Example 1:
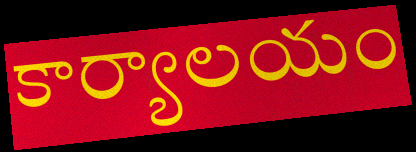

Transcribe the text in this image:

కార్యాలయం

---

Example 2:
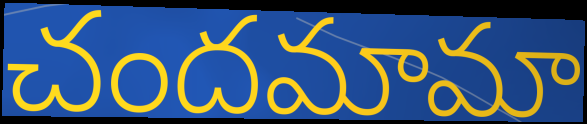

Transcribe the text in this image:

చందమామా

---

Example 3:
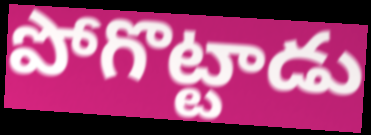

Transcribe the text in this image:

పోగొట్టాడు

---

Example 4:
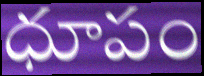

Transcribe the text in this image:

ధూపం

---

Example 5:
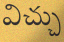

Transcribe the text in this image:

విచ్చు